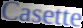
Casette